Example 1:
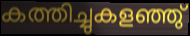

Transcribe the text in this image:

കത്തിച്ചുകളഞ്ഞു്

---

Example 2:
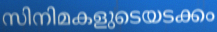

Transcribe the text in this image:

സിനിമകളുടെയടക്കം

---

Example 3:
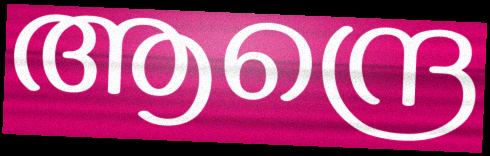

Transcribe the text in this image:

ആന്ദ്രെ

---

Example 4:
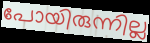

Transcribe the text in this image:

പോയിരുന്നില്ല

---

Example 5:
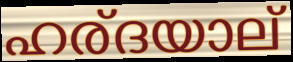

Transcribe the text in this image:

ഹര്ദയാല്